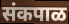
संकपाळ